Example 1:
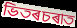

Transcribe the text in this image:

ভিতৰচৰাত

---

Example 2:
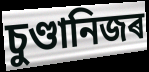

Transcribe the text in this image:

চুণ্ডানিজৰ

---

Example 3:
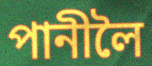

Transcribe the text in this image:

পানীলৈ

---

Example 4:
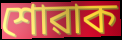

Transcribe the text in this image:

শোৱাক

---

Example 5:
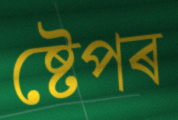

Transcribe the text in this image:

ষ্টেপৰ